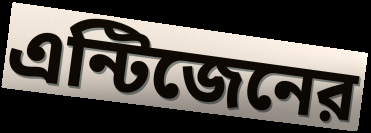
এন্টিজেনের